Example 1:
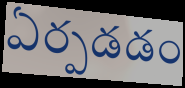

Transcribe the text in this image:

ఏర్పడడం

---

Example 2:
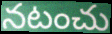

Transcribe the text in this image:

నటంచు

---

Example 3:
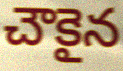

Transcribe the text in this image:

చౌకైన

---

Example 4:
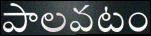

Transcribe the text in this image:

పాలవటం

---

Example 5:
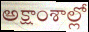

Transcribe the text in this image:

అక్షాంశాల్లో